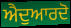
ਐਦੁਆਰਦੋ